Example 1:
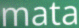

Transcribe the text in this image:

mata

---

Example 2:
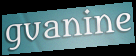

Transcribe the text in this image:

guanine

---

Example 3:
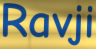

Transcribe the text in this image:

Ravji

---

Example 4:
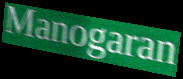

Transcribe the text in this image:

Manogaran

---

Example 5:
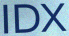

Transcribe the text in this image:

IDX